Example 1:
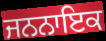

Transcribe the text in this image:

ਜਨਨਾਇਕ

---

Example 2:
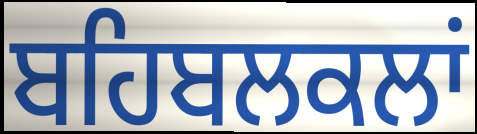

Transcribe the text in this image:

ਬਹਿਬਲਕਲਾਂ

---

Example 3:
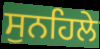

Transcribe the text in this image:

ਸੁਨਹਿਲੇ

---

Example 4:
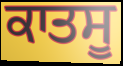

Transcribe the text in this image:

ਕਾਤਸੂ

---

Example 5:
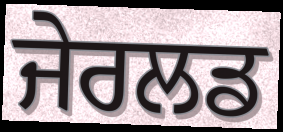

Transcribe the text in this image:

ਜੇਰਲਡ